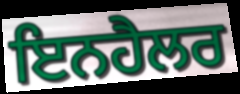
ਇਨਹੈਲਰ